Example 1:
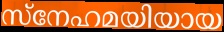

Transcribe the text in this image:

സ്നേഹമയിയായ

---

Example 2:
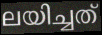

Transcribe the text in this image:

ലയിച്ചത്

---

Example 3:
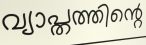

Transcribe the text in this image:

വ്യാപ്തത്തിന്റെ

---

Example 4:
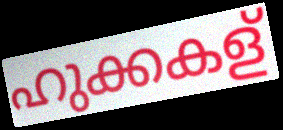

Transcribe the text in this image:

ഹുക്കകള്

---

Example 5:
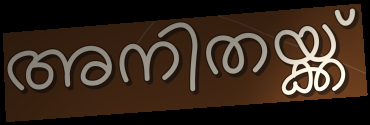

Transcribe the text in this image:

അനിതയ്ക്ക്